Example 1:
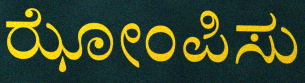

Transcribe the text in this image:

ಝೋಂಪಿಸು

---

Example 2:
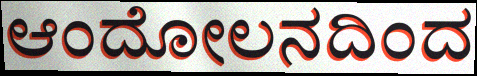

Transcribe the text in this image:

ಆಂದೋಲನದಿಂದ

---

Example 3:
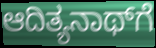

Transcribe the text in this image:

ಆದಿತ್ಯನಾಥ್‌ಗೆ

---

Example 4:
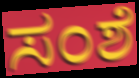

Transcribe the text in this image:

ಸಂಶೆ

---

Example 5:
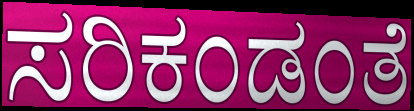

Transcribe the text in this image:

ಸರಿಕಂಡಂತೆ